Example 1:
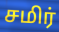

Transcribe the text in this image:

சமிர்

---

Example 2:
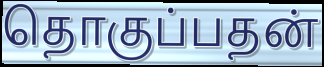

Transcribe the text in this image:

தொகுப்பதன்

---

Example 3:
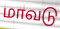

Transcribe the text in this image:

மாவடு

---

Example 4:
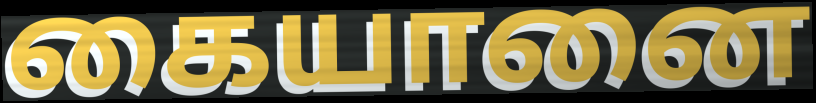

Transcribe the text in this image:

கையானை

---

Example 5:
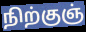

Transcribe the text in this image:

நிற்குஞ்